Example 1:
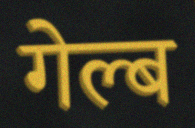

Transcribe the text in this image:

गेल्ब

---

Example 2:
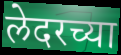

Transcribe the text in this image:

लेदरच्या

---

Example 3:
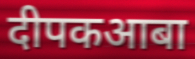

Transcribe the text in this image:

दीपकआबा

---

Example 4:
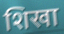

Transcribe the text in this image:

शिखा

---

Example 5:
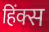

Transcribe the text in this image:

हिंक्स